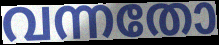
വന്നതോ